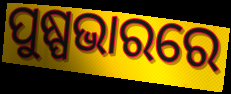
ପୁଷ୍ପଭାରରେ